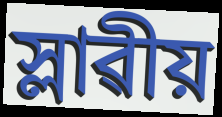
স্লাৱীয়